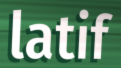
latif